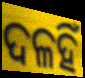
ଦଳହିଁ